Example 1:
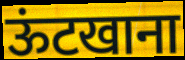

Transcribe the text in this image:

ऊंटखाना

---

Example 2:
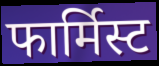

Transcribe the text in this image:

फार्मिस्ट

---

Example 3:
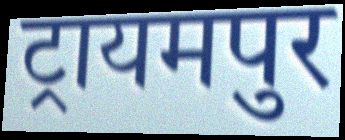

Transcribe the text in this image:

ट्रायमपुर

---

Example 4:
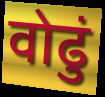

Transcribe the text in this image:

वोढुं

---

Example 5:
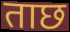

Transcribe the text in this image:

ताछ